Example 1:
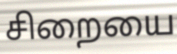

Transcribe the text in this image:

சிறையை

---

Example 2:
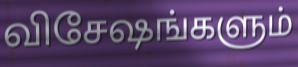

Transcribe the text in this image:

விசேஷங்களும்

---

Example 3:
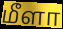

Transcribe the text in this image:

மீளா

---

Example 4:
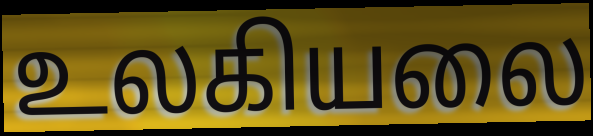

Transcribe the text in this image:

உலகியலை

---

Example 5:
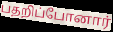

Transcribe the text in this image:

பதறிப்போனார்